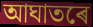
আঘাতৰে